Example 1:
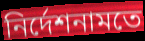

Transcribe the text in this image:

নির্দেশনামতে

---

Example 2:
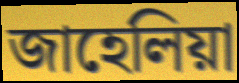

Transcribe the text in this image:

জাহেলিয়া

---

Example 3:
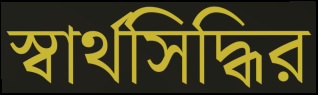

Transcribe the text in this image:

স্বার্থসিদ্ধির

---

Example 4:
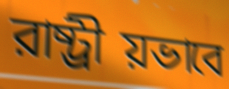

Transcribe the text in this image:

রাষ্ট্রীয়ভাবে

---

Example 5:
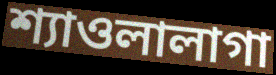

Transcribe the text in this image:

শ্যাওলালাগা